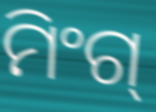
ମିଂଗ୍